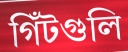
গিঁটগুলি